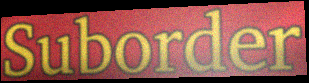
Suborder